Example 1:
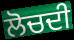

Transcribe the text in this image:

ਲੋਚਦੀ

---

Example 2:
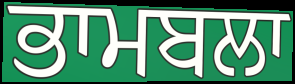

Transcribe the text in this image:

ਭਾਮਬਲਾ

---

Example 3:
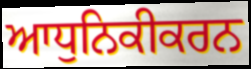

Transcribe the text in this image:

ਆਧੁਨਿਕੀਕਰਨ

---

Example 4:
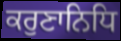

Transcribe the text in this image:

ਕਰੁਣਾਨਿਧਿ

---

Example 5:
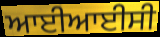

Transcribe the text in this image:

ਆਈਆਈਸੀ